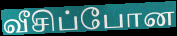
வீசிப்போன